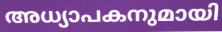
അധ്യാപകനുമായി